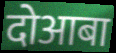
दोआबा